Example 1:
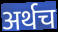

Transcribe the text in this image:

अर्थच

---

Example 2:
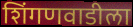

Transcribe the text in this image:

शिंगणवाडीला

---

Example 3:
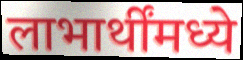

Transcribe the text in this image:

लाभार्थींमध्ये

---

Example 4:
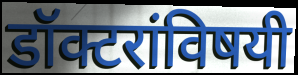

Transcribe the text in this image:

डॉक्टरांविषयी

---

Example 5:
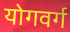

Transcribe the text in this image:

योगवर्ग